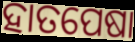
ହାତପେଷା